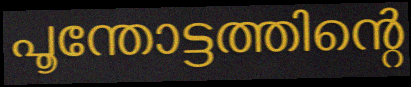
പൂന്തോട്ടത്തിന്റെ